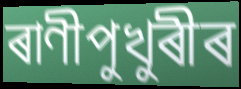
ৰাণীপুখুৰীৰ